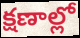
క్షణాల్లో